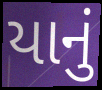
યાનું